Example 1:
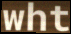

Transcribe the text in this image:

wht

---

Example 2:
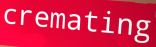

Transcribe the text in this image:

cremating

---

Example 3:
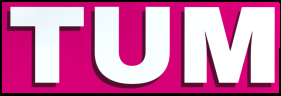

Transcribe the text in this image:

TUM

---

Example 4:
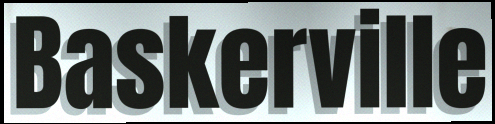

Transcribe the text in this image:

Baskerville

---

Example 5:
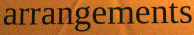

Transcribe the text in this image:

arrangements